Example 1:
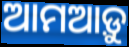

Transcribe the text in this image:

ଆମଆଡ଼ୁ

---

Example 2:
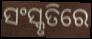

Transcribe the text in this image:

ସଂସ୍କୃତିରେ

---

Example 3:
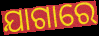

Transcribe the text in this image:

ଯାଗାରେ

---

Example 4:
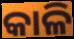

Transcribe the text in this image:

କାଳି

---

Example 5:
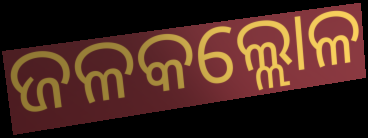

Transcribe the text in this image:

ଜଳକଲ୍ଲୋଳ